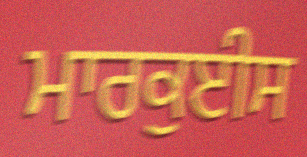
ਮਾਰਕੁਈਸ